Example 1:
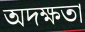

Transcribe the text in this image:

অদক্ষতা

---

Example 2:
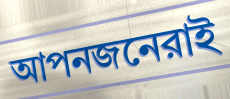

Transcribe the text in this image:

আপনজনেরাই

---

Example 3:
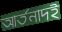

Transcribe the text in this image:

আর্তনাদই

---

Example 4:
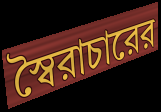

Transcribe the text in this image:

স্বৈরাচারের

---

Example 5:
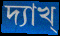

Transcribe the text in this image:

দ্যাখ্